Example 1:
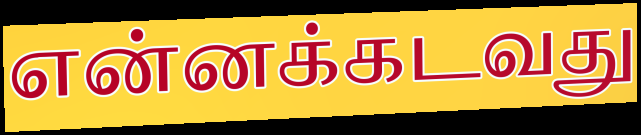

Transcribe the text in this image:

என்னக்கடவது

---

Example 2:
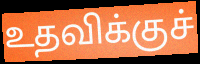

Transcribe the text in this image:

உதவிக்குச்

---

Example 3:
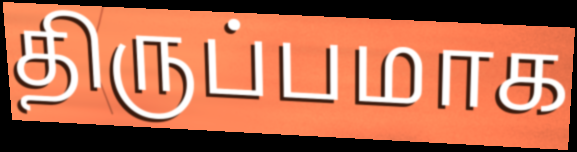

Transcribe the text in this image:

திருப்பமாக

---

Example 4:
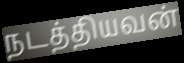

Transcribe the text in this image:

நடத்தியவன்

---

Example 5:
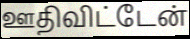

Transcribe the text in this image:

ஊதிவிட்டேன்